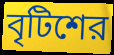
বৃটিশের